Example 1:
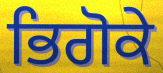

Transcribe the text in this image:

ਭਿਗੋਕੇ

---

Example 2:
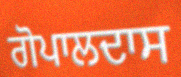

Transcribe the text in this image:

ਗੋਪਾਲਦਾਸ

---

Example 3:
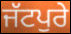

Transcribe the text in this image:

ਜੱਟਪੁਰੇ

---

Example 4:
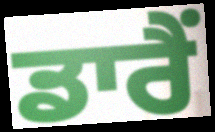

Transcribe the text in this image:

ਡਾਰੈਂ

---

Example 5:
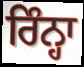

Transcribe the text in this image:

ਰਿੰਨ੍ਹਾ